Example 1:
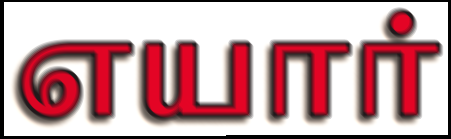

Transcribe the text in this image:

எயார்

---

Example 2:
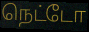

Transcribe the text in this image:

நெட்டோ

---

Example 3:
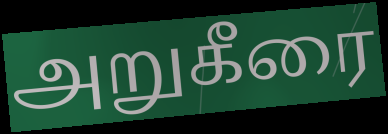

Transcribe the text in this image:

அறுகீரை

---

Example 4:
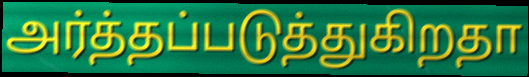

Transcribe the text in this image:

அர்த்தப்படுத்துகிறதா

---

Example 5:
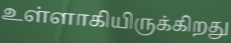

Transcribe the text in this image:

உள்ளாகியிருக்கிறது